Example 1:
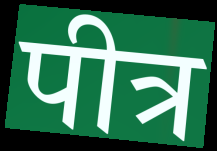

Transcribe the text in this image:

पीत्र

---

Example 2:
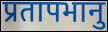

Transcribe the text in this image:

प्रतापभानु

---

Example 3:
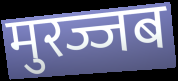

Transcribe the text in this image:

मुरज्जब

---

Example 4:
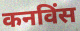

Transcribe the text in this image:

कनविंस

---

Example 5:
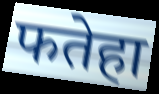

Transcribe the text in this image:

फतेहा